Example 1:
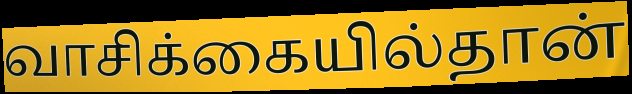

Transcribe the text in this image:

வாசிக்கையில்தான்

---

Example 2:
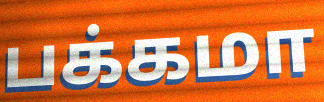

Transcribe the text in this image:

பக்கமா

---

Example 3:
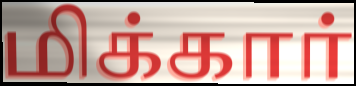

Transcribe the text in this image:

மிக்கார்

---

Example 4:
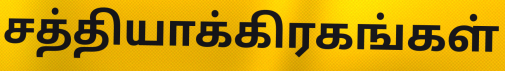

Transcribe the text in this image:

சத்தியாக்கிரகங்கள்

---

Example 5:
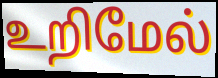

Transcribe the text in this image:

உறிமேல்